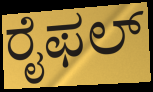
ರೈಫಲ್